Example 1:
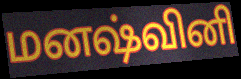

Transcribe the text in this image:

மனஷ்வினி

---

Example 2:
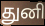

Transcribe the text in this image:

துனி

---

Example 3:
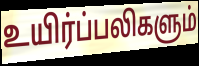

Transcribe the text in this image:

உயிர்ப்பலிகளும்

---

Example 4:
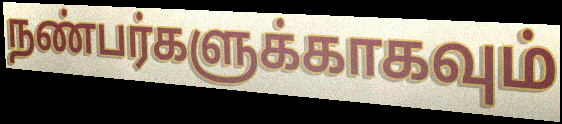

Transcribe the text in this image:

நண்பர்களுக்காகவும்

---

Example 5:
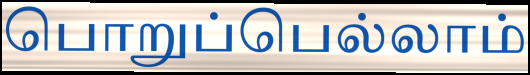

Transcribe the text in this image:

பொறுப்பெல்லாம்